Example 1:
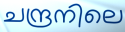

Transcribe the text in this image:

ചന്ദ്രനിലെ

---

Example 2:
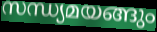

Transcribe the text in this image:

സന്ധ്യമയങ്ങും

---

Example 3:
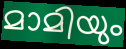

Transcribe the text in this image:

മാമിയും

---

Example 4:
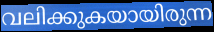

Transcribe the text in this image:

വലിക്കുകയായിരുന്ന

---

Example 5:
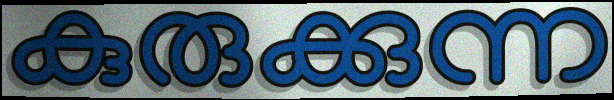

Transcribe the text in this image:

കുരുക്കുന്ന